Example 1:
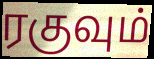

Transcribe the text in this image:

ரகுவும்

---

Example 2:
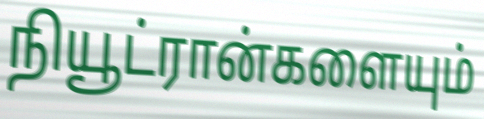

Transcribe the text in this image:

நியூட்ரான்களையும்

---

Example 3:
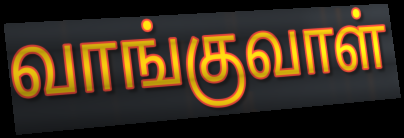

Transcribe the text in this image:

வாங்குவாள்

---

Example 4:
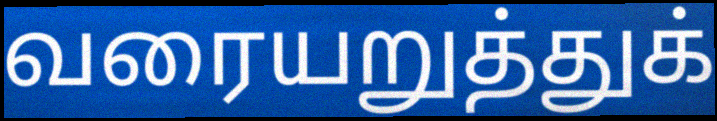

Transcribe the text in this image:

வரையறுத்துக்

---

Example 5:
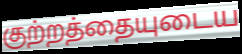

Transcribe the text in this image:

குற்றத்தையுடைய